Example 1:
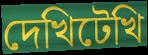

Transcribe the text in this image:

দেখিটেখি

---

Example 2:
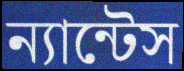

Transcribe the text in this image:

ন্যান্টেস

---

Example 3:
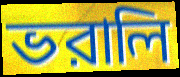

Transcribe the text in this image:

ভরালি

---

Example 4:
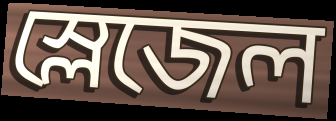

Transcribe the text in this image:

স্লেজেল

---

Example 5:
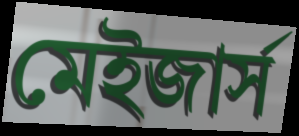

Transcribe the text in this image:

মেইজার্স